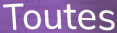
Toutes